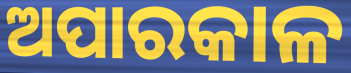
ଅପାରକାଳ